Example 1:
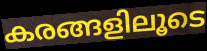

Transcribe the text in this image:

കരങ്ങളിലൂടെ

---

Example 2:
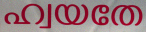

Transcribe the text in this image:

ഹ്വയതേ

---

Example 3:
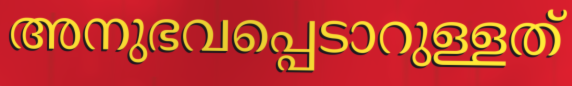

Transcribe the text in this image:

അനുഭവപ്പെടാറുള്ളത്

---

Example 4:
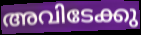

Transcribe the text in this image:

അവിടേക്കു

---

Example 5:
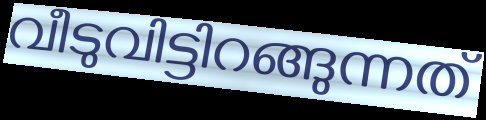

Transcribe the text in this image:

വീടുവിട്ടിറങ്ങുന്നത്